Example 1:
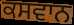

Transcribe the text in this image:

ਕਸਵਾਨ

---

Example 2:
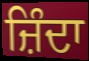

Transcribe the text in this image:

ਜ਼ਿੰਦਾ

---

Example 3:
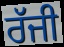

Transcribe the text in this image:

ਰੱਜੀ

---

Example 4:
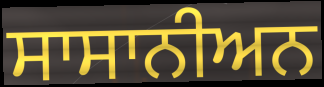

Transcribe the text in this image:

ਸਾਸਾਨੀਅਨ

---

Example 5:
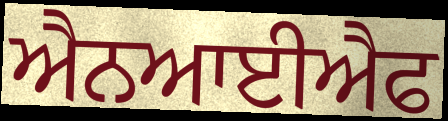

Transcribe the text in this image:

ਐਨਆਈਐਫ